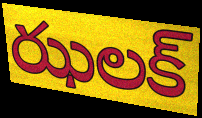
ఝలక్